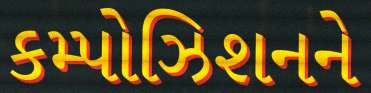
કમ્પોઝિશનને